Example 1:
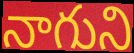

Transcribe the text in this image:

నాగుని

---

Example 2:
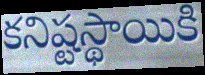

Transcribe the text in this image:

కనిష్టస్థాయికి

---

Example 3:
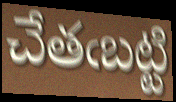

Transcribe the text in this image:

చేతఁబట్టి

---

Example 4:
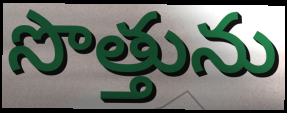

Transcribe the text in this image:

సొత్తును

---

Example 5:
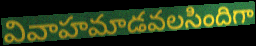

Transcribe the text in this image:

వివాహమాడవలసిందిగా